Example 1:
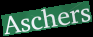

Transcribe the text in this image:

Aschers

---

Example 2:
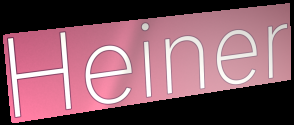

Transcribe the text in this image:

Heiner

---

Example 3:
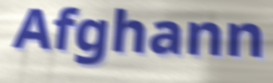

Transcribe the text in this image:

Afghann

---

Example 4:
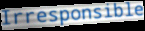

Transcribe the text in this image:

Irresponsible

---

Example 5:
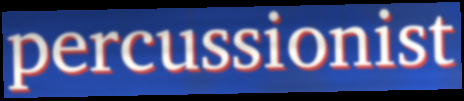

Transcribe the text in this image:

percussionist